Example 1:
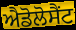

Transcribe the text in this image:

ਐਡੋਲੋਸੈਂਟ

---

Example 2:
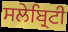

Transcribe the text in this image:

ਸਲੇਬ੍ਰਿਟੀ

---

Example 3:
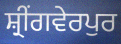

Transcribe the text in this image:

ਸ਼੍ਰੀਂਗਵੇਰਪੁਰ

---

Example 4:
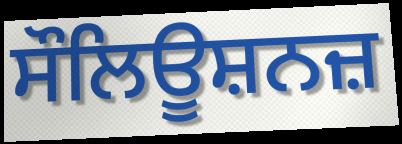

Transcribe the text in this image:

ਸੌਲਿਊਸ਼ਨਜ਼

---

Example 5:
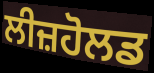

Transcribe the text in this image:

ਲੀਜ਼ਹੋਲਡ